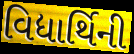
વિદ્યાર્થિની